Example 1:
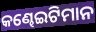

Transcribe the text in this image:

କଣ୍ଢେଇଟିମାନ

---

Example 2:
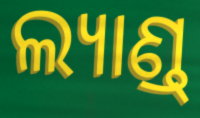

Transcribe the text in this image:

ଲ୍ୟାଣ୍ଡ୍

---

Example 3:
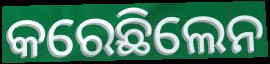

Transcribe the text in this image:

କରେଛିଲେନ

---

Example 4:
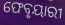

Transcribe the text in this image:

ଫେବୃୟାରୀ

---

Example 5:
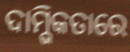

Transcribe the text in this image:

ଦାମ୍ଭିକତାରେ